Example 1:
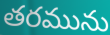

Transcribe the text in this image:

తరమును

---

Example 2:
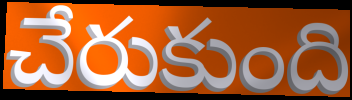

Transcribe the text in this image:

చేరుకుంది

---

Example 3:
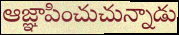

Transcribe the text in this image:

ఆజ్ఞాపించుచున్నాడు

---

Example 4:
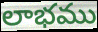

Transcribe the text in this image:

లాభము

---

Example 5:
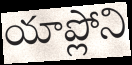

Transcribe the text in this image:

యాప్లోని